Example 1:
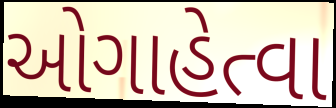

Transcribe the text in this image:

ઓગાહેત્વા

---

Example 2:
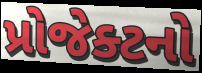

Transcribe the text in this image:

પ્રોજેક્ટનો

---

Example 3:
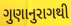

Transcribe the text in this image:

ગુણાનુરાગથી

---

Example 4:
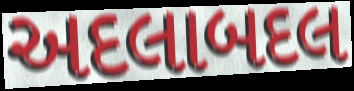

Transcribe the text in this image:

અદલાબદલ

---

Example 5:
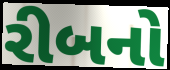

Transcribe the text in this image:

રીબનો